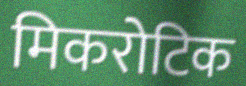
मिकरोटिक